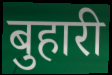
बुहारी